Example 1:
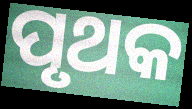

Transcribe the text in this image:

ପୃଥକ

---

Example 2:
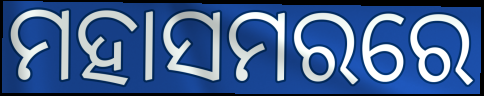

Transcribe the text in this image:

ମହାସମରରେ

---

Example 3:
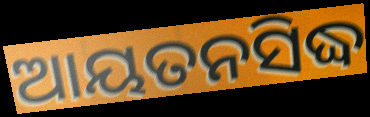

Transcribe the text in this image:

ଆୟତନସିଦ୍ଧ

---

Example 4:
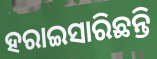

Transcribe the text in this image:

ହରାଇସାରିଛନ୍ତି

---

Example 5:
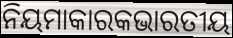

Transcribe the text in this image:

ନିୟମାକାରକଭାରତୀୟ